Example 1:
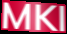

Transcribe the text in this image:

MKI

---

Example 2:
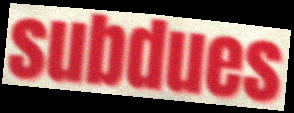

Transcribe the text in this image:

subdues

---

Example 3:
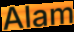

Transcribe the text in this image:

Alam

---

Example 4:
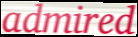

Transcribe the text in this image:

admired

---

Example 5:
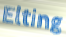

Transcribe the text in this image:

Elting